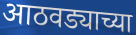
आठवड्याच्या